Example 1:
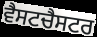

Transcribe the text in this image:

ਵੈਸਟਚੈਸਟਰ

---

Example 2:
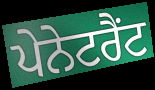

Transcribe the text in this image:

ਪੇਨੇਟਰੈਂਟ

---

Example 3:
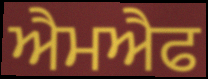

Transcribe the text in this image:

ਐਮਐਫ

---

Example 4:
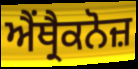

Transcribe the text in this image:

ਐਂਥ੍ਰੈਕਨੋਜ਼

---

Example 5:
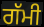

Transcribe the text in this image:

ਗੱਮੀ